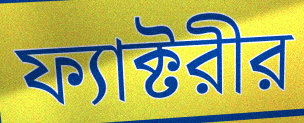
ফ্যাক্টরীর